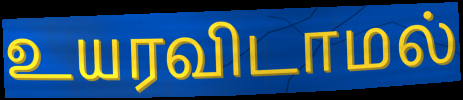
உயரவிடாமல்